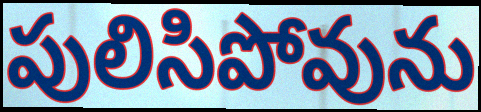
పులిసిపోవును